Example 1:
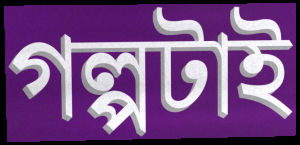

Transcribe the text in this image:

গল্পটাই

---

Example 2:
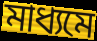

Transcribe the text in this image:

মাধ্যমে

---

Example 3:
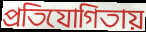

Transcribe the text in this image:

প্রতিযোগিতায়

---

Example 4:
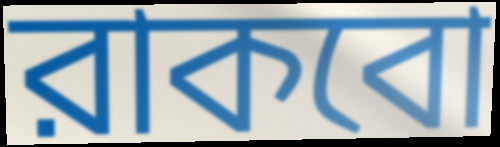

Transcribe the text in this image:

রাকবো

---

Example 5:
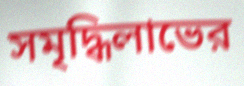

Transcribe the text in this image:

সমৃদ্ধিলাভের